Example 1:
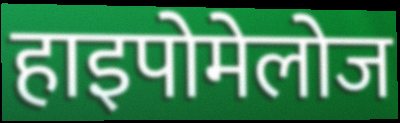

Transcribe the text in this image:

हाइपोमेलोज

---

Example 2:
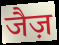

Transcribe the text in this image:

जैज़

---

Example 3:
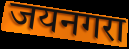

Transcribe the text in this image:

जयनगरा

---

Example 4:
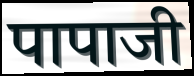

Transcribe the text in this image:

पापाजी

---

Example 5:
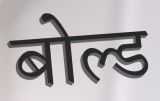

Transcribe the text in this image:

बोल्ड